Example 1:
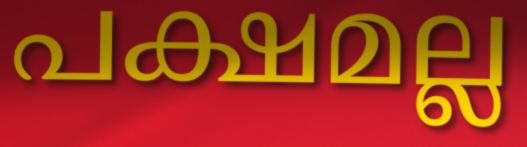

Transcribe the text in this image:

പക്ഷമല്ല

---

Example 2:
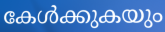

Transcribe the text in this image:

കേൾക്കുകയും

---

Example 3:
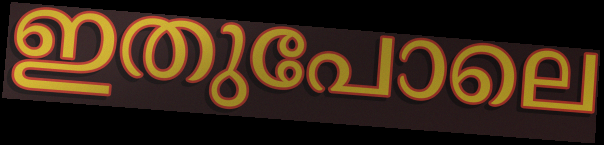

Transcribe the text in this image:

ഇതുപോലെ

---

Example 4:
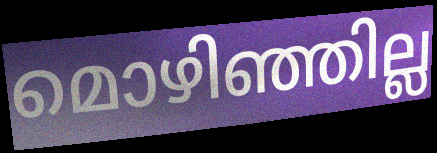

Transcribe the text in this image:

മൊഴിഞ്ഞില്ല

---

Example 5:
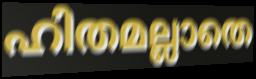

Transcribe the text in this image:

ഹിതമല്ലാതെ